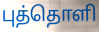
புத்தொளி